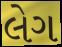
લેગ